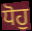
ਧੋਹੁ